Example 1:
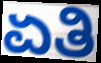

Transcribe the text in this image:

ಏತಿ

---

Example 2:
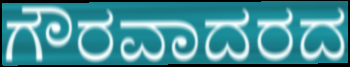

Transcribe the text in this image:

ಗೌರವಾದರದ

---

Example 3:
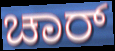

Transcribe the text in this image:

ಚಾರ್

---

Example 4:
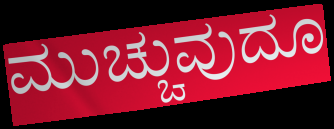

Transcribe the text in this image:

ಮುಚ್ಚುವುದೂ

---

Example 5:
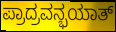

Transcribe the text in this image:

ಪ್ರಾದ್ರವನ್ಭಯಾತ್